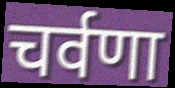
चर्वणा